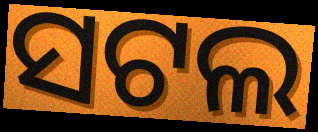
ସଟଲ